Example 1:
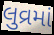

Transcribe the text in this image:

લુવ્રમાં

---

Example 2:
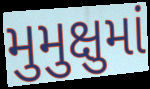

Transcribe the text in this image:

મુમુક્ષુમાં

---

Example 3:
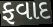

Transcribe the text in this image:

ફવાદ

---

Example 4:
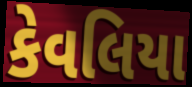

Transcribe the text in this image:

કેવલિયા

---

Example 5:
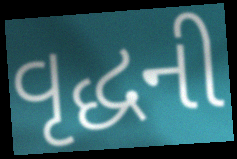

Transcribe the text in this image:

વૃદ્ધની